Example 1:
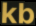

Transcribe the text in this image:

kb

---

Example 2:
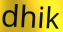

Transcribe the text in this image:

dhik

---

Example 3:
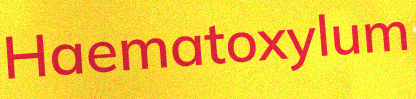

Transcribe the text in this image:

Haematoxylum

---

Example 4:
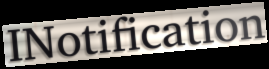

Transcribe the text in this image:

INotification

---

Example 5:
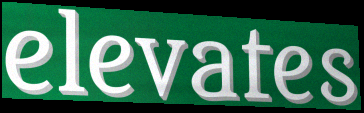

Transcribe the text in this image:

elevates